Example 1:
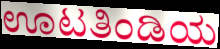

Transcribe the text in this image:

ಊಟತಿಂಡಿಯ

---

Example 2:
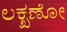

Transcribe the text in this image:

ಲಕ್ಖಣೋ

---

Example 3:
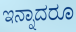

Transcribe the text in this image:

ಇನ್ನಾದರೂ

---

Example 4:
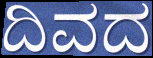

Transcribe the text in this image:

ದಿವದ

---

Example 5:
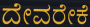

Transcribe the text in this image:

ದೇವರೇಕೆ